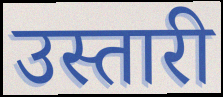
उस्तारी